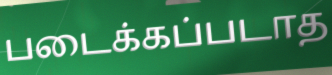
படைக்கப்படாத